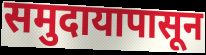
समुदायापासून